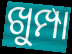
ଖୁମ୍ପା